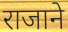
राजाने